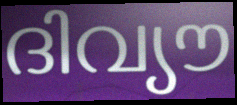
ദിവ്യൗ